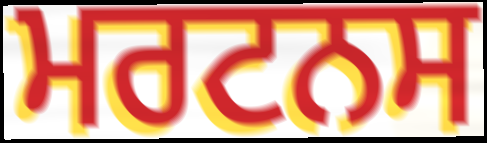
ਮਰਟਨਸ